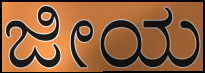
ಜೀಯ